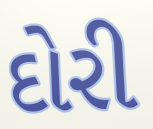
દોરી